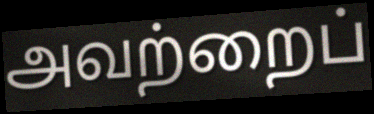
அவற்றைப்